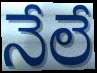
నేలే